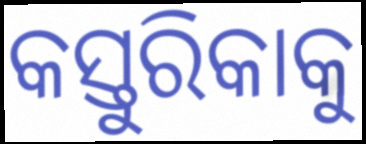
କସ୍ତୁରିକାକୁ